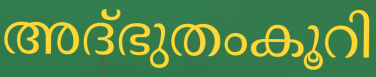
അദ്ഭുതംകൂറി